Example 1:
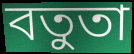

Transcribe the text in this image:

বতুতা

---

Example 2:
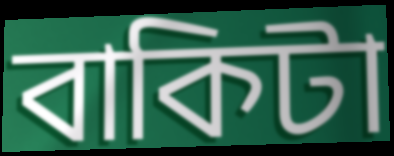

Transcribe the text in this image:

বাকিটা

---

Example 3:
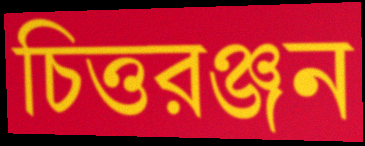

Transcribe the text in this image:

চিত্তরঞ্জন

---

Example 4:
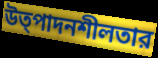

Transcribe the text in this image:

উত্পাদনশীলতার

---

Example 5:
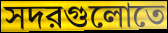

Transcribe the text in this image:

সদরগুলোতে